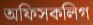
অফিসকলিগ